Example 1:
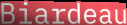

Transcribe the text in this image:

Biardeau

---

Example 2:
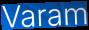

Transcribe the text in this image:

Varam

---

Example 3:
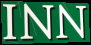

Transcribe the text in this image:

INN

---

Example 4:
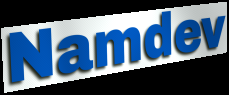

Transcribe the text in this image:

Namdev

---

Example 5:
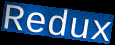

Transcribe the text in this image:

Redux